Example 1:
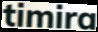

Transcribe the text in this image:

timira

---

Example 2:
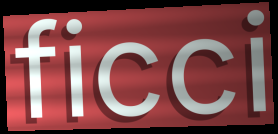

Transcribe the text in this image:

ficci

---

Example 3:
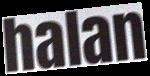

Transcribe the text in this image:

halan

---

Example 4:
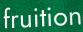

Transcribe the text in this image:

fruition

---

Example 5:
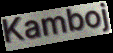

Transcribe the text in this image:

Kamboj